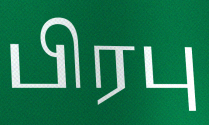
பிரபு